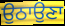
ਉਠਾਉਣਾ